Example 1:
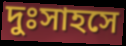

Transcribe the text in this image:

দুঃসাহসে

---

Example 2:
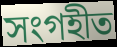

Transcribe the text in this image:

সংগহীত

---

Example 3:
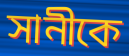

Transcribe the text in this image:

সানীকে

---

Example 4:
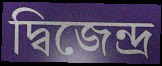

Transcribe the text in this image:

দ্বিজেন্দ্র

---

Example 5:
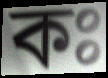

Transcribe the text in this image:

কঃ